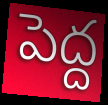
పెద్ద